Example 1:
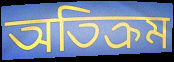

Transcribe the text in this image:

অতিক্রম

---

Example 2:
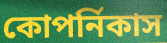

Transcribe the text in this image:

কোপর্নিকাস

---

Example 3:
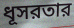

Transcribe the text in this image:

ধূসরতার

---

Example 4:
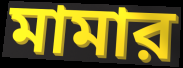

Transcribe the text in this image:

মামার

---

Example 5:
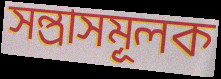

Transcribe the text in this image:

সন্ত্রাসমূলক